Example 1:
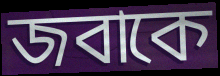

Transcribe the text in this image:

জবাকে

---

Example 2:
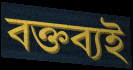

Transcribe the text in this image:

বক্তব্যই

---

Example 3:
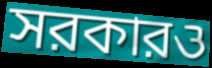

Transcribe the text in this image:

সরকারও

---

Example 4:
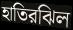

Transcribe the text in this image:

হাতিরঝিল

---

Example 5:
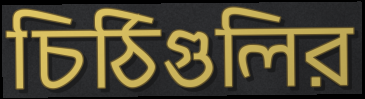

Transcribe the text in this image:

চিঠিগুলির